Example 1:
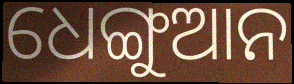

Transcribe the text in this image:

ଧେଙ୍ଗୁଆନ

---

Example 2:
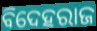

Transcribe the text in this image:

ବିଦେହରାଜ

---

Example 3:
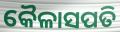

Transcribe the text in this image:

କୈଳାସପତି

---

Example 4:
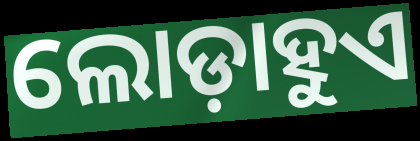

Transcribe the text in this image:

ଲୋଡ଼ାହୁଏ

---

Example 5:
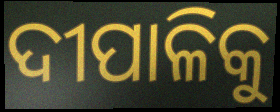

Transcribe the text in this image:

ଦୀପାଳିକୁ